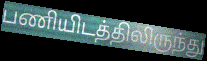
பணியிடத்திலிருந்து